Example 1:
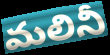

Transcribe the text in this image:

మలినీ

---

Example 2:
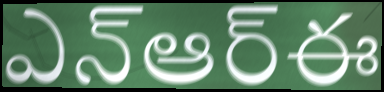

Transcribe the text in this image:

ఎన్ఆర్ఈ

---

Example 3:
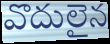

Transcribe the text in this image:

వొదులైన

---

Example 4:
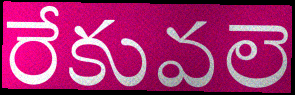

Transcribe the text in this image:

రేకువలె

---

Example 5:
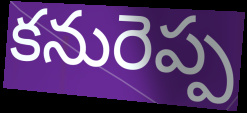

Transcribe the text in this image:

కనురెప్ప